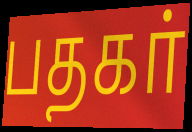
பதகர்